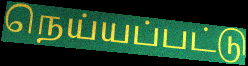
நெய்யப்பட்டு